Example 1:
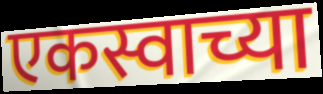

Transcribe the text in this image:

एकस्वाच्या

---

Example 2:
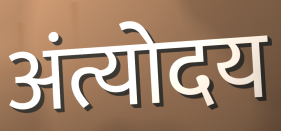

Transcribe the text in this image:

अंत्योदय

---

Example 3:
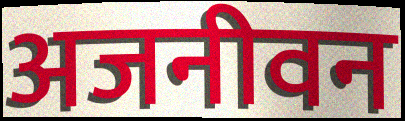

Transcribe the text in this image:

अजनीवन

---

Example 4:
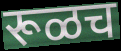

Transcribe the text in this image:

रूळच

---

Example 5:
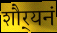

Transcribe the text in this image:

शौर्यनं